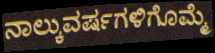
ನಾಲ್ಕುವರ್ಷಗಳಿಗೊಮ್ಮೆ